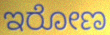
ಇರೋಣ